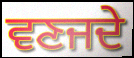
ਵਣਜਦੇ